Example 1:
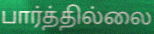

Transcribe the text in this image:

பார்த்தில்லை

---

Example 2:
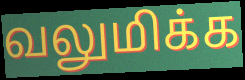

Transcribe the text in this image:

வலுமிக்க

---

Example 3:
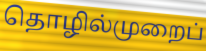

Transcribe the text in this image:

தொழில்முறைப்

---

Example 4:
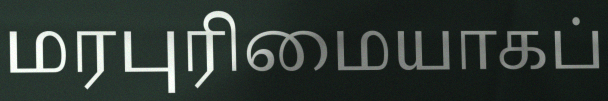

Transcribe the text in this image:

மரபுரிமையாகப்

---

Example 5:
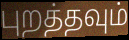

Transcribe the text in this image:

புறத்தவும்